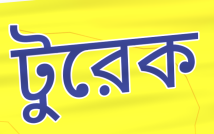
টুরেক